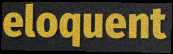
eloquent